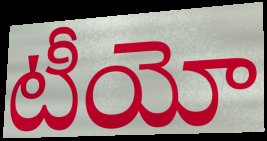
టీయో